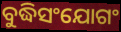
ବୁଦ୍ଧିସଂଯୋଗଂ